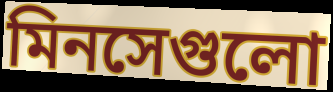
মিনসেগুলো